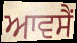
ਆਵਸੈਂ